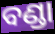
ବଣ୍ଡା